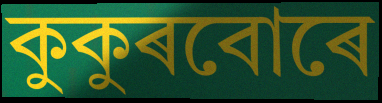
কুকুৰবোৰে